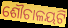
ଶୌଚାଳୟଟି